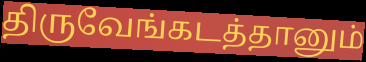
திருவேங்கடத்தானும்